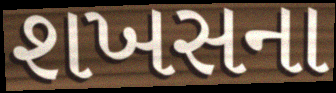
શખસના